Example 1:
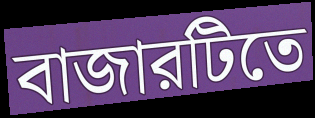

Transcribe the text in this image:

বাজারটিতে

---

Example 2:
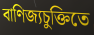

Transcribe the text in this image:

বাণিজ্যচুক্তিতে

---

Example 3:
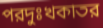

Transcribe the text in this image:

পরদুঃখকাতর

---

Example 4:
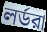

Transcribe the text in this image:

লর্ডরা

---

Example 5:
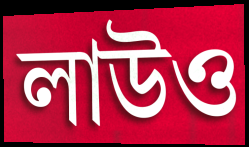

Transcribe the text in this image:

লাউও